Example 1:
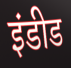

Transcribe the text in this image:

इंडीड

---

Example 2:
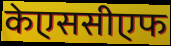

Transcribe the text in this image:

केएससीएफ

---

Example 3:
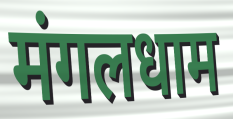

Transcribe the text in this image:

मंगलधाम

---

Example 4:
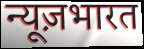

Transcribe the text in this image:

न्यूज़भारत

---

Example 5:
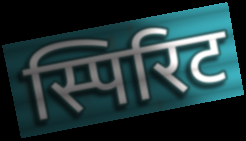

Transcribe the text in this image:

स्पिरिट